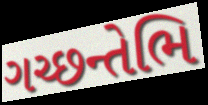
ગચ્છન્તેભિ